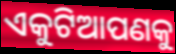
ଏକୁଟିଆପଣକୁ